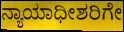
ನ್ಯಾಯಾಧೀಶರಿಗೇ